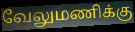
வேலுமணிக்கு